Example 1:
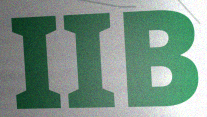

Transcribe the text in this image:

IIB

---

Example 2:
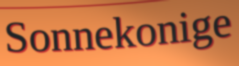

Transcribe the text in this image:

Sonnekonige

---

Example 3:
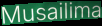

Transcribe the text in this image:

Musailima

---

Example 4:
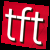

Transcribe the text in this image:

tft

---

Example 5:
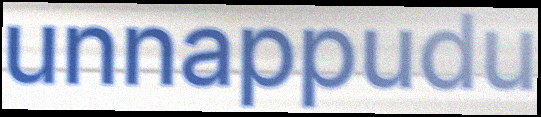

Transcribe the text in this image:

unnappudu